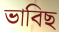
ভাবিছ